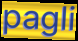
pagli